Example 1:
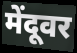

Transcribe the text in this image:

मेंदूवर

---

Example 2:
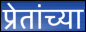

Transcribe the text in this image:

प्रेतांच्या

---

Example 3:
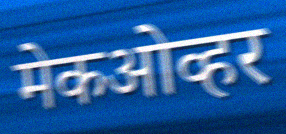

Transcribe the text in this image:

मेकओव्हर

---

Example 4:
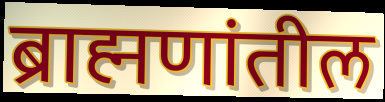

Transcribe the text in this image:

ब्राह्मणांतील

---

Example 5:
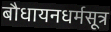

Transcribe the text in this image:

बौधायनधर्मसूत्र